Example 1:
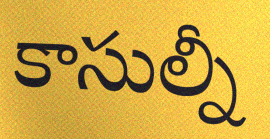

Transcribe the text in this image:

కాసుల్నీ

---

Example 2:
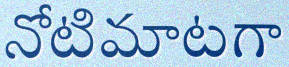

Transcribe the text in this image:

నోటిమాటగా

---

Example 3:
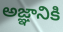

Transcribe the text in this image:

అజ్ఞానికి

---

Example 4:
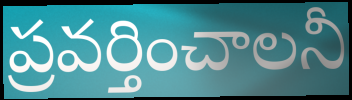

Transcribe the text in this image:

ప్రవర్తించాలనీ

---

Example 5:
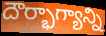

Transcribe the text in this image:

దౌర్భాగ్యాన్ని